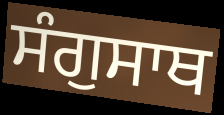
ਸੰਗੁਸਾਥ